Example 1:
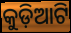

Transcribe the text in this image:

କୁଡ଼ିଆଟି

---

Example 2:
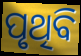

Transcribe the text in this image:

ପୃଥିବି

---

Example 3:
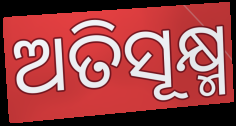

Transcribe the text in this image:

ଅତିସୂକ୍ଷ୍ମ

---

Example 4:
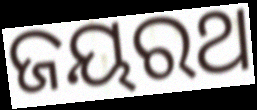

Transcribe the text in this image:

ଜୟରଥ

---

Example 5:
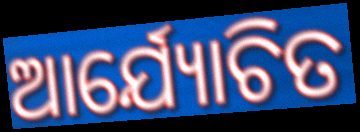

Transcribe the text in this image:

ଆର୍ଯ୍ୟୋଚିତ